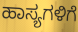
ಹಾಸ್ಯಗಳಿಗೆ